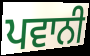
ਪਵਾਨੀ